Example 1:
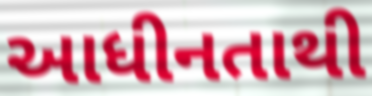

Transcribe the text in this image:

આધીનતાથી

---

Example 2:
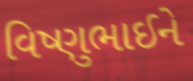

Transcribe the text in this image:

વિષ્ણુભાઈને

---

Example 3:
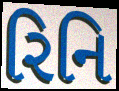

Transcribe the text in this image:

રિનિ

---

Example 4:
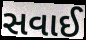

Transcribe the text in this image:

સવાઈ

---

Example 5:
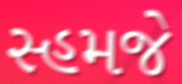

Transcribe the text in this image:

સ્હમજે